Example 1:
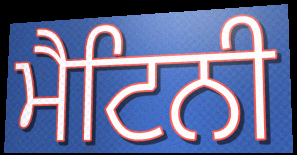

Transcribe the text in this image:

ਮੈਟਿਨੀ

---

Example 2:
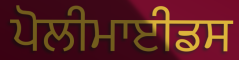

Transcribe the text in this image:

ਪੋਲੀਮਾਈਡਸ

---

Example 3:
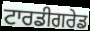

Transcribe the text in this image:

ਟਾਰਡੀਗਰੇਡ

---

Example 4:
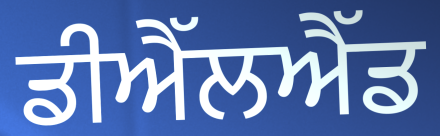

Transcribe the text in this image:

ਡੀਐੱਲਐੱਡ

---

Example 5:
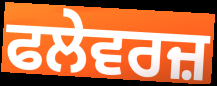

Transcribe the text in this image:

ਫਲੇਵਰਜ਼